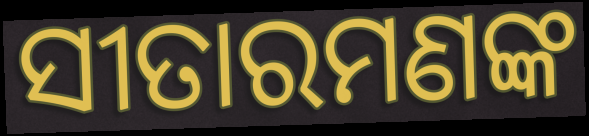
ସୀତାରମଣଙ୍କ